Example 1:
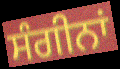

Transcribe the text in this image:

ਸੰਗੀਨਾਂ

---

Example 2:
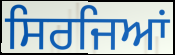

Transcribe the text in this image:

ਸਿਰਜਿਆਂ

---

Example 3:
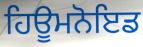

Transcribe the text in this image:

ਹਿਊਮਨੋਇਡ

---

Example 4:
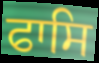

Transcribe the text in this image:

ਫਾਸਿ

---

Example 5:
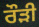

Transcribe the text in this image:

ਰੌੜੀ